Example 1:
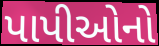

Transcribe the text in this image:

પાપીઓનો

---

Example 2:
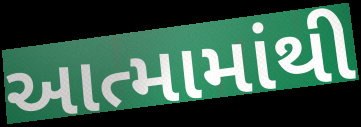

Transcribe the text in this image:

આત્મામાંથી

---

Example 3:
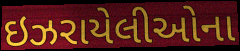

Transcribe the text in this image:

ઇઝરાયેલીઓના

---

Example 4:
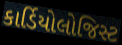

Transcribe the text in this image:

કાર્ડિયોલોજિસ્ટ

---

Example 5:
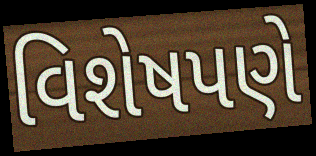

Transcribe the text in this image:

વિશેષપણે